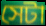
সেটা